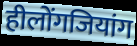
हीलोंगजियांग